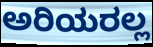
ಅರಿಯರಲ್ಲ